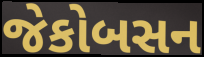
જેકોબસન